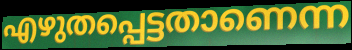
എഴുതപ്പെട്ടതാണെന്ന